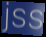
jss